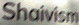
Shaivism